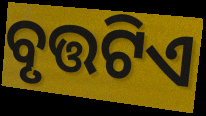
ବୃତ୍ତଟିଏ